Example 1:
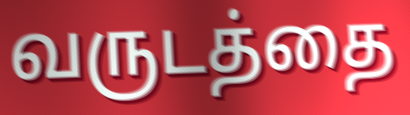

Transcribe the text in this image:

வருடத்தை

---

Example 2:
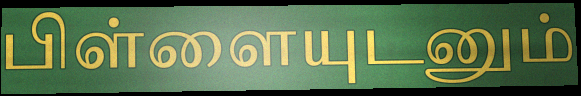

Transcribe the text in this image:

பிள்ளையுடனும்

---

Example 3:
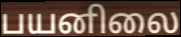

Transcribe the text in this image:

பயனிலை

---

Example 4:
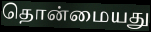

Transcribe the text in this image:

தொன்மையது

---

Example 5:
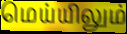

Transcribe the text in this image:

மெய்யிலும்